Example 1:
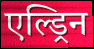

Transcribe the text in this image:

एल्ड्रिन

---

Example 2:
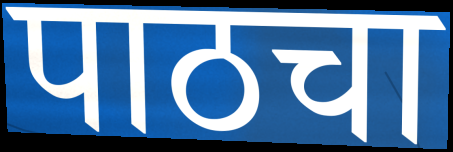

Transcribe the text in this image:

पाठचा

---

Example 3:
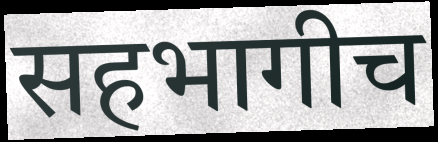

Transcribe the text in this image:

सहभागीच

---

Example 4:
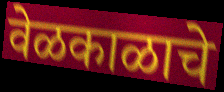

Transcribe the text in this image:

वेळकाळाचे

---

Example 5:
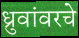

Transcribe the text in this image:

ध्रुवांवरचे